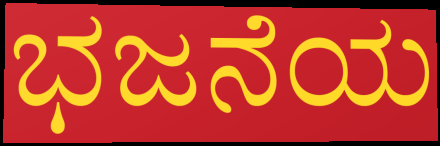
ಭಜನೆಯ